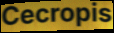
Cecropis